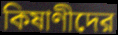
কিষাণীদের